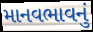
માનવભાવનું